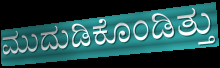
ಮುದುಡಿಕೊಂಡಿತ್ತು